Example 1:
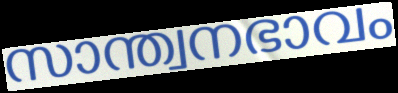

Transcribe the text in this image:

സാന്ത്വനഭാവം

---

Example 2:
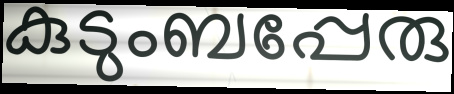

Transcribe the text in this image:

കുടുംബപ്പേരു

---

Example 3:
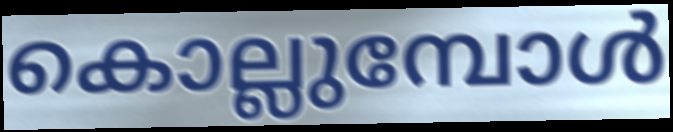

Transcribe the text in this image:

കൊല്ലുമ്പോൾ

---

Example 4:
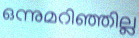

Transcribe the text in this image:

ഒന്നുമറിഞ്ഞില്ല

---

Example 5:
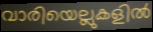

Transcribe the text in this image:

വാരിയെല്ലുകളിൽ